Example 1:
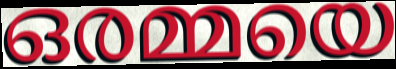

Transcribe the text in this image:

ഒരമ്മയെ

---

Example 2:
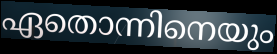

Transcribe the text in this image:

ഏതൊന്നിനെയും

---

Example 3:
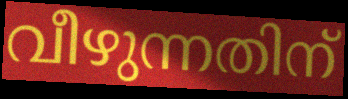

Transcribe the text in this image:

വീഴുന്നതിന്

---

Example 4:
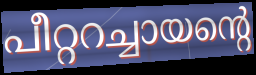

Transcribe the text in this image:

പീറ്ററച്ചായന്റെ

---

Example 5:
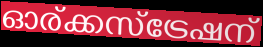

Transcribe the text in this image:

ഓര്ക്കസ്ട്രേഷന്